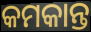
କମକାନ୍ତ